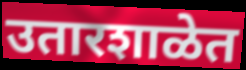
उतारशाळेत